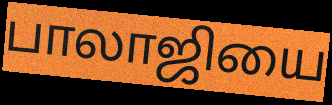
பாலாஜியை